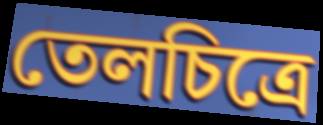
তেলচিত্রে